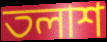
তলাশ